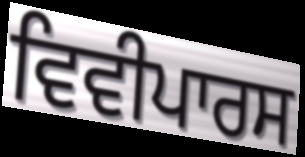
ਵਿਵੀਪਾਰਸ